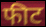
फीट